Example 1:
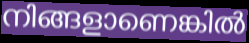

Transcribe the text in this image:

നിങ്ങളാണെങ്കിൽ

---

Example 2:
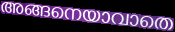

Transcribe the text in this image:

അങ്ങനെയാവാതെ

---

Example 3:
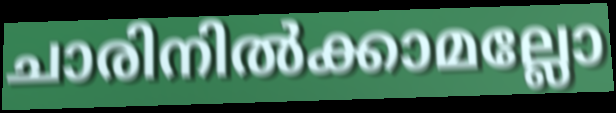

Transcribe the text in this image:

ചാരിനിൽക്കാമല്ലോ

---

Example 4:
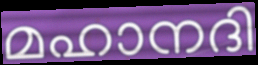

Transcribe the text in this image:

മഹാനദി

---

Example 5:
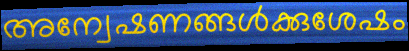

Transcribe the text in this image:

അന്വേഷണങ്ങൾക്കുശേഷം